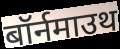
बॉर्नमाउथ